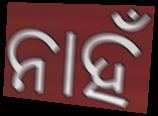
ନାହଁ